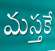
మస్తకే